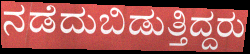
ನಡೆದುಬಿಡುತ್ತಿದ್ದರು